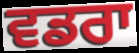
ਵਡਰਾ